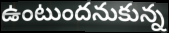
ఉంటుందనుకున్న